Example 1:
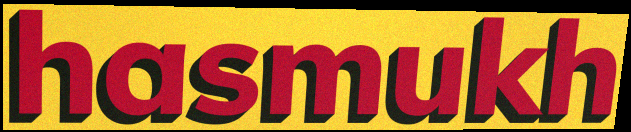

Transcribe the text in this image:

hasmukh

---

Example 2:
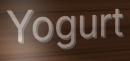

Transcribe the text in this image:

Yogurt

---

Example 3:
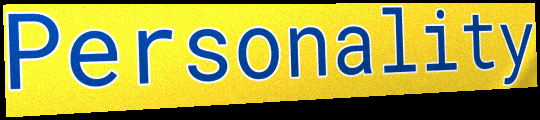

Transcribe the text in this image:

Personality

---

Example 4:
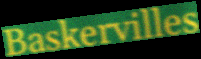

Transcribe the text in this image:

Baskervilles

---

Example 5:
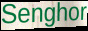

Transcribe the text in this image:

Senghor